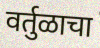
वर्तुळाचा